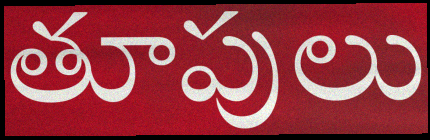
తూపులు